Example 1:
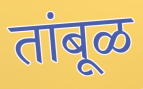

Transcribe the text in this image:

तांबूळ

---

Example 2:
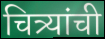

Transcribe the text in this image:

चित्र्यांची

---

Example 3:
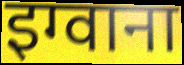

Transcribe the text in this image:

इग्वाना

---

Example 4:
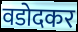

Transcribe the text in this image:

वडोदकर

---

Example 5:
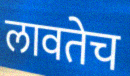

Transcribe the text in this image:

लावतेच